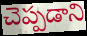
చెప్పడాని